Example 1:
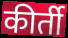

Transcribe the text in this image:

कीर्ती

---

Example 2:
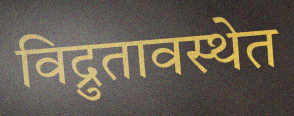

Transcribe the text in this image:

विद्रुतावस्थेत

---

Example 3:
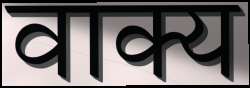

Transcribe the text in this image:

वाक्य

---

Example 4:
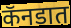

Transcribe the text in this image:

कॅनडात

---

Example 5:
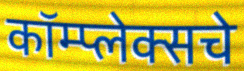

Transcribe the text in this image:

कॉम्प्लेक्सचे